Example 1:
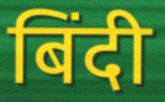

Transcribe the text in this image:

बिंदी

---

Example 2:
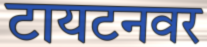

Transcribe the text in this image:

टायटनवर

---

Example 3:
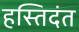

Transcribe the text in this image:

हस्तिदंत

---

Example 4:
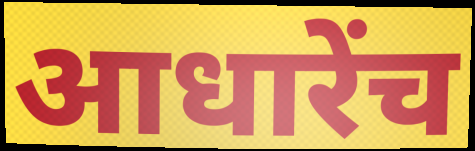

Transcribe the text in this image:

आधारेंच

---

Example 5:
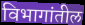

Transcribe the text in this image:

विभागांतील